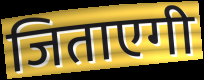
जिताएगी